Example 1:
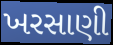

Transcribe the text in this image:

ખરસાણી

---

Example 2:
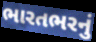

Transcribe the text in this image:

ભારતભરનું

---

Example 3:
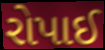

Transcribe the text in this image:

રોપાઈ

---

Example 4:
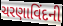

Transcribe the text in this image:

ચરણાવિંદની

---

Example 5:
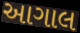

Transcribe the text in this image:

આગાલ